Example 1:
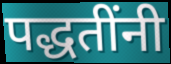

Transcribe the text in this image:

पद्धतींनी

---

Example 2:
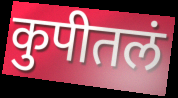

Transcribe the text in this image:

कुपीतलं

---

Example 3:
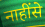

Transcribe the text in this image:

नाहींसे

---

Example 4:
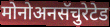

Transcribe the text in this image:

मोनोअनसॅचुरेटेड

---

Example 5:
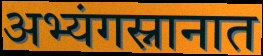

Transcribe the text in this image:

अभ्यंगस्नानात